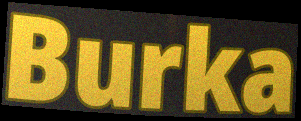
Burka